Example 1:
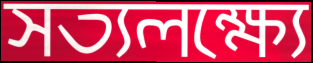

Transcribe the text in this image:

সত্যলক্ষ্যে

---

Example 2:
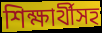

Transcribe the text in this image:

শিক্ষার্থীসহ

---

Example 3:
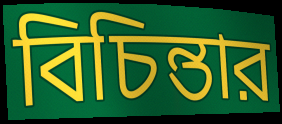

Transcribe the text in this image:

বিচিন্তার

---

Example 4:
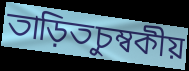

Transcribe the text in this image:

তাড়িতচুম্বকীয়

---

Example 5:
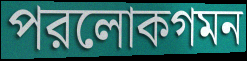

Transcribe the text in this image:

পরলোকগমন